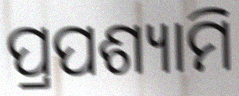
ପ୍ରପଶ୍ୟାମି